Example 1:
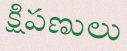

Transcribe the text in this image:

క్షిపణులు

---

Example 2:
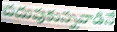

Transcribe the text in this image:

చదువుకున్నవాడినే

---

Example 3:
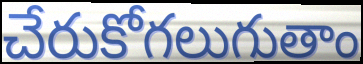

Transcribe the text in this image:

చేరుకోగలుగుతాం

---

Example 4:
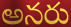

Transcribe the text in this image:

అనరు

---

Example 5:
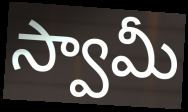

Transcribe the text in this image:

స్వామీ